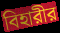
বিহারীর